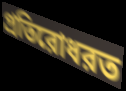
প্রতিরোধরত